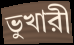
ভুখারী